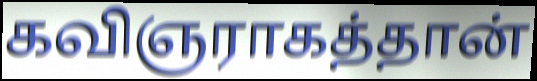
கவிஞராகத்தான்